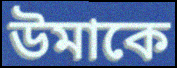
উমাকে